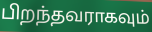
பிறந்தவராகவும்